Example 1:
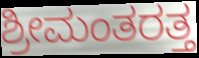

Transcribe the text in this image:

ಶ್ರೀಮಂತರತ್ತ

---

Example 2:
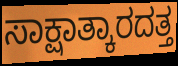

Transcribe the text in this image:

ಸಾಕ್ಷಾತ್ಕಾರದತ್ತ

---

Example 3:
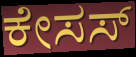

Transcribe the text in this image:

ಕೇಸಸ್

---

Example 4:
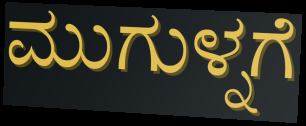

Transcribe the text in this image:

ಮುಗುಳ್ನಗೆ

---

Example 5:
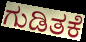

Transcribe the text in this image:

ಗುಡಿತಕೆ